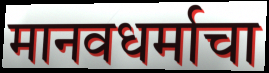
मानवधर्माचा